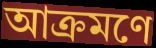
আক্রমণে